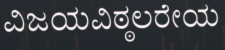
ವಿಜಯವಿಠ್ಠಲರೇಯ